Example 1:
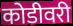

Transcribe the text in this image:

कोडीवरी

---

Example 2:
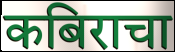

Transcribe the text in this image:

कबिराचा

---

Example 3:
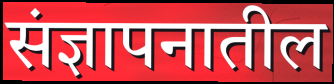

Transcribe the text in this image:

संज्ञापनातील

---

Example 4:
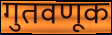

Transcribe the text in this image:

गुतवणूक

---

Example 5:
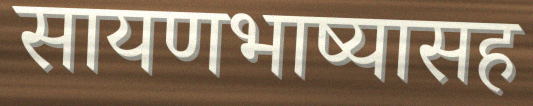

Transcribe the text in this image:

सायणभाष्यासह